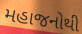
મહાજનોથી